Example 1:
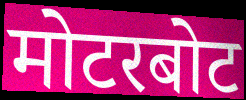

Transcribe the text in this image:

मोटरबोट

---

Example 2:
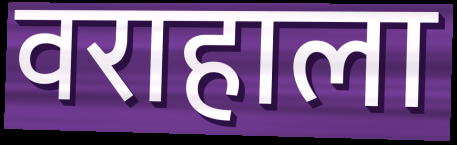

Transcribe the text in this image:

वराहाला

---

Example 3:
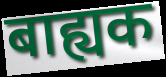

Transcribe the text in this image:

बाह्यक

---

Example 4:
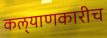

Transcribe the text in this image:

कल्याणकारीच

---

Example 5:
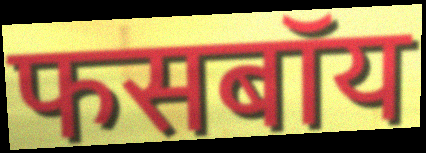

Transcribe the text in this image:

फसबॉय